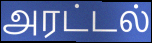
அரட்டல்